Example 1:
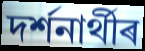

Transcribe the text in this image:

দৰ্শনাৰ্থীৰ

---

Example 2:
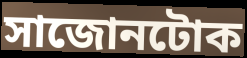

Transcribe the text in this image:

সাজোনটোক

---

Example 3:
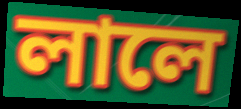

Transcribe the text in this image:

লালে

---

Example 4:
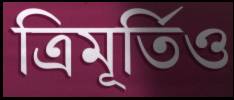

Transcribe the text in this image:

ত্ৰিমূৰ্তিও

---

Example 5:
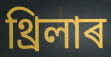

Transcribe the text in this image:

থ্ৰিলাৰ